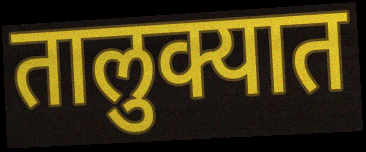
तालुक्यात